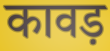
कावड़